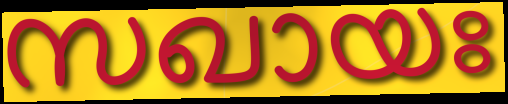
സഖായഃ